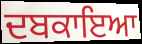
ਦਬਕਾਇਆ